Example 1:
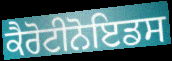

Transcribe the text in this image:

ਕੈਰੋਟੀਨੋਇਡਸ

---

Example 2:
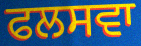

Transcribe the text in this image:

ਫਲਸਵਾ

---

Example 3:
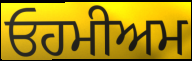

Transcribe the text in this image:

ਓਹਮੀਅਮ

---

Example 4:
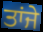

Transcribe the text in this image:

ਤਾਂਜੇ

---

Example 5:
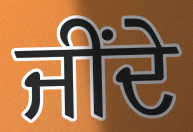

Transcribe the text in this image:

ਜੀਂਦੇ